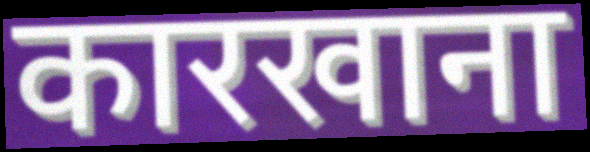
कारखाना